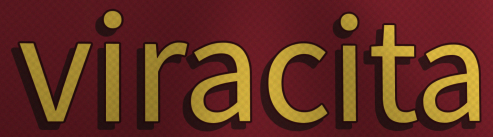
viracita